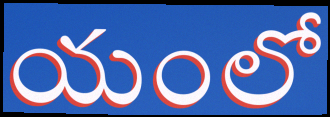
యంలో